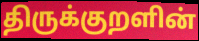
திருக்குறளின்